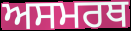
ਅਸਮਰਥ